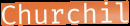
Churchil